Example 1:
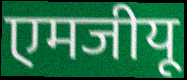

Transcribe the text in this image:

एमजीयू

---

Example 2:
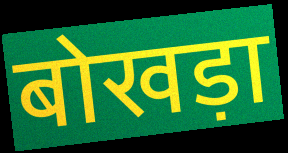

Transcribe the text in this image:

बोखड़ा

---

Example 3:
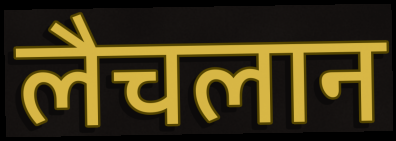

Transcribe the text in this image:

लैचलान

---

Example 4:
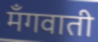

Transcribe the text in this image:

मँगवाती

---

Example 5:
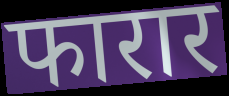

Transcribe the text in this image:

फारार